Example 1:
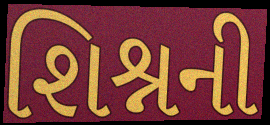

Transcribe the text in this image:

શિશ્નની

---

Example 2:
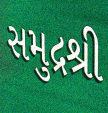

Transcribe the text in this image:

સમુદ્રશ્રી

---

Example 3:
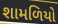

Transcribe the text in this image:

શામળિયો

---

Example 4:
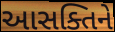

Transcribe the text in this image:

આસક્તિને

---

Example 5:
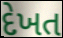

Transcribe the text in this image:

દેખત